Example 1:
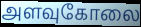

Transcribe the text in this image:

அளவுகோலை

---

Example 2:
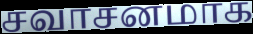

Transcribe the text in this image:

சவாசனமாக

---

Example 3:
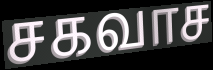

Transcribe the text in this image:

சகவாச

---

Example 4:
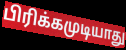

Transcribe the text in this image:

பிரிக்கமுடியாது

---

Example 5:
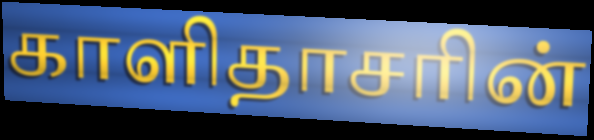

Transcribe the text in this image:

காளிதாசரின்